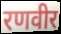
रणवीर